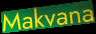
Makvana